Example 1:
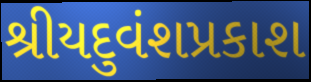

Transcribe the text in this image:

શ્રીયદુવંશપ્રકાશ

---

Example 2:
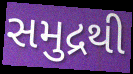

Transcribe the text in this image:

સમુદ્રથી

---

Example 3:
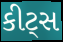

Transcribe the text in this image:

કીટ્સ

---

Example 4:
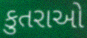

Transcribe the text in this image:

કુતરાઓ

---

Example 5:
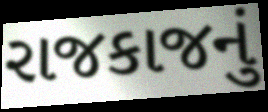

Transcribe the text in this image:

રાજકાજનું